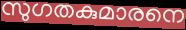
സുഗതകുമാരനെ